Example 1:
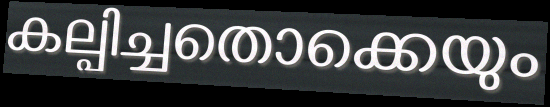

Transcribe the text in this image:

കല്പിച്ചതൊക്കെയും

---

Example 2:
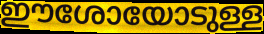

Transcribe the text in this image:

ഈശോയോടുള്ള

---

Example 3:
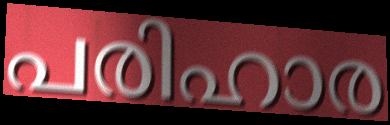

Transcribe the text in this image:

പരിഹാര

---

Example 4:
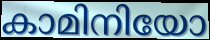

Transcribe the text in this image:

കാമിനിയോ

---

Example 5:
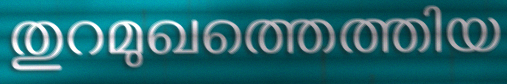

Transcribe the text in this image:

തുറമുഖത്തെത്തിയ